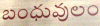
బంధువులం